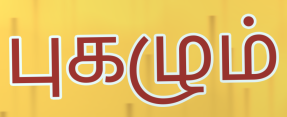
புகழும்